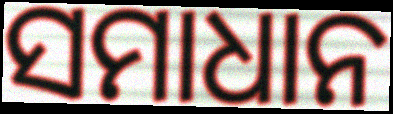
ସମାଧାନ